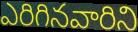
ఎరిగినవారిని